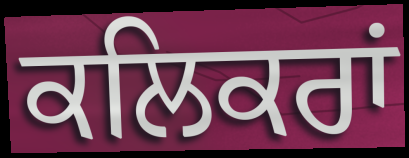
ਕਲਿਕਰਾਂ